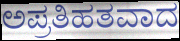
ಅಪ್ರತಿಹತವಾದ